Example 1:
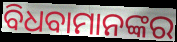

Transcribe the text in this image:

ବିଧବାମାନଙ୍କର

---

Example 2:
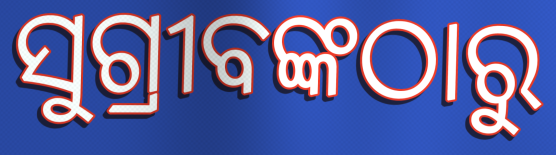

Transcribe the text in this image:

ସୁଗ୍ରୀବଙ୍କଠାରୁ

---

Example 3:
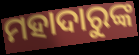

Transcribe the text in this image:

ମହାଦାରୁଙ୍କ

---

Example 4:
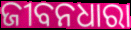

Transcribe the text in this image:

ଜୀବନଧାରା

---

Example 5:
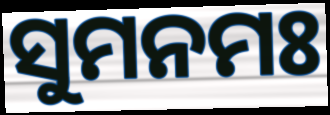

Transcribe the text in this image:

ସୁମନମଃ